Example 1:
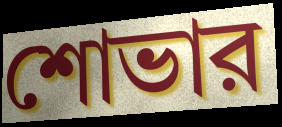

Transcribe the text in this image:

শোভার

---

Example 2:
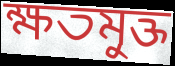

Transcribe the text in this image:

ক্ষতমুক্ত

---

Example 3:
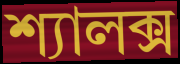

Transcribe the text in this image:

শ্যালক্স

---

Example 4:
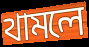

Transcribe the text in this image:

থামলে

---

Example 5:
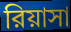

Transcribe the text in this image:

রিয়াসা